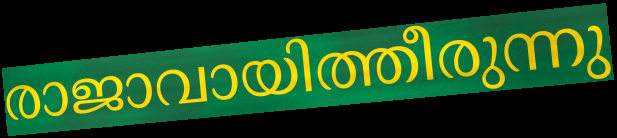
രാജാവായിത്തീരുന്നു